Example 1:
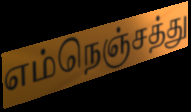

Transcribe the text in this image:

எம்நெஞ்சத்து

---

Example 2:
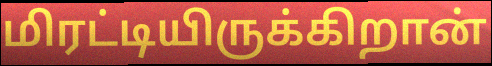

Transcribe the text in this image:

மிரட்டியிருக்கிறான்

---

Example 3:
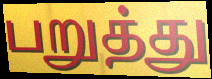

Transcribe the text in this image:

பறுத்து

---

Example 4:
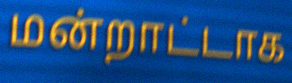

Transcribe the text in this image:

மன்றாட்டாக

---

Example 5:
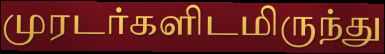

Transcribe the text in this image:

முரடர்களிடமிருந்து